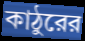
কাঠুরের